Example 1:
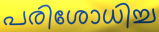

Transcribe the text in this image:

പരിശോധിച്ച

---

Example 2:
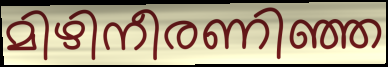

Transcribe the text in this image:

മിഴിനീരണിഞ്ഞ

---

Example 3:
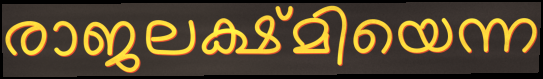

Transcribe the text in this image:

രാജലക്ഷ്മിയെന്ന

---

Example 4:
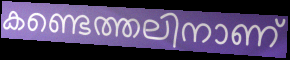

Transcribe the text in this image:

കണ്ടെത്തലിനാണ്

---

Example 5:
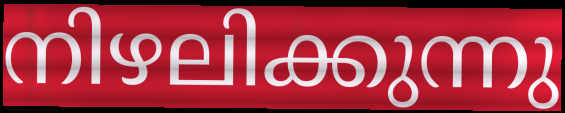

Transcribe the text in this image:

നിഴലിക്കുന്നു